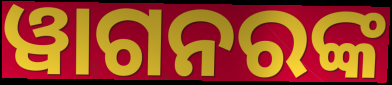
ୱାଗନରଙ୍କ